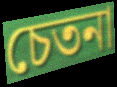
চেতনা